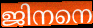
ജിനനെ